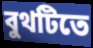
বুথটিতে